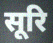
सूरि